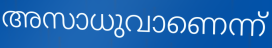
അസാധുവാണെന്ന്